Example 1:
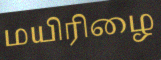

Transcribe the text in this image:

மயிரிழை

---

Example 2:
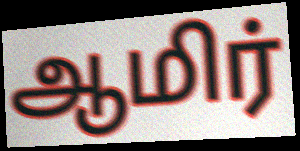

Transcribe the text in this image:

ஆமிர்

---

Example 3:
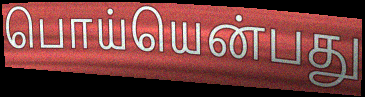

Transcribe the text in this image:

பொய்யென்பது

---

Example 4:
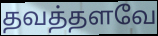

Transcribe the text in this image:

தவத்தளவே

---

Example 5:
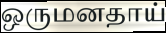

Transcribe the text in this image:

ஒருமனதாய்